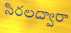
సిరలద్వారా